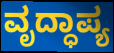
ವೃದ್ಧಾಪ್ಯ